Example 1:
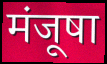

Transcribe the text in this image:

मंजूषा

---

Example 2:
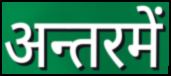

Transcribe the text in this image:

अन्तरमें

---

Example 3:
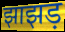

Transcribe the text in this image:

झाझड़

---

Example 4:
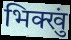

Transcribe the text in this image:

भिक्खुं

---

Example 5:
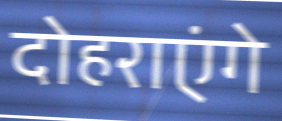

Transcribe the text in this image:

दोहराएंगे